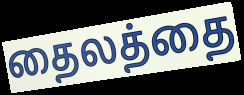
தைலத்தை